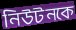
নিউটনকে